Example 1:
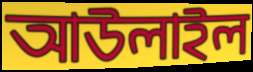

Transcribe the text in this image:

আউলাইল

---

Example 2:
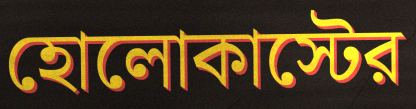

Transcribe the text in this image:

হোলোকাস্টের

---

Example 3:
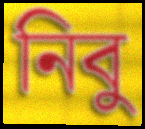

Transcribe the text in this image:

নিবু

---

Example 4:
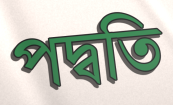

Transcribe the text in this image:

পদ্বতি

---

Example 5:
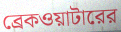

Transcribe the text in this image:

ব্রেকওয়াটারের